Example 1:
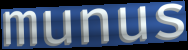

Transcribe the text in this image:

munus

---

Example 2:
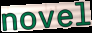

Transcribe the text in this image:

novel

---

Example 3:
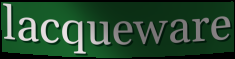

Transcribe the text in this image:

lacqueware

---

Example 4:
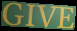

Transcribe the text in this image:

GIVE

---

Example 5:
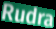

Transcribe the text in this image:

Rudra